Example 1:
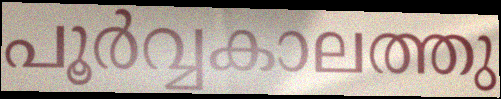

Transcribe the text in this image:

പൂർവ്വകാലത്തു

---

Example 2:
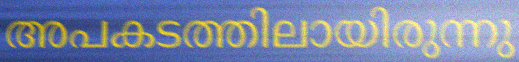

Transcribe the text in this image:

അപകടത്തിലായിരുന്നു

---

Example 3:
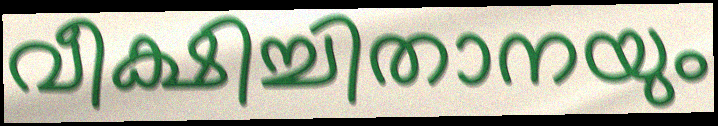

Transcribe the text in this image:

വീക്ഷിച്ചിതാനയും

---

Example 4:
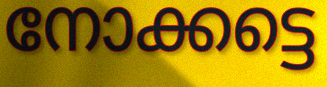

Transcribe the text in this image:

നോക്കട്ടെ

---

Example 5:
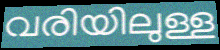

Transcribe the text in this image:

വരിയിലുള്ള